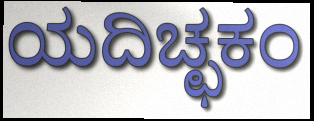
ಯದಿಚ್ಛಕಂ